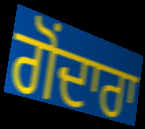
ਗੋਂਦਾਰਾ